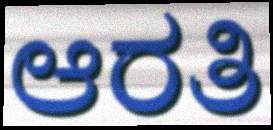
ಆರತಿ